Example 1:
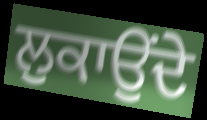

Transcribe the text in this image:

ਲੁਕਾਉਂਦੇ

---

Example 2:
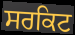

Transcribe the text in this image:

ਸਰਕਿਟ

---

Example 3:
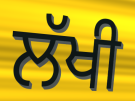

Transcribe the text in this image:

ਲੱਖੀ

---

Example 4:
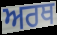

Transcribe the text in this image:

ਅਰਥ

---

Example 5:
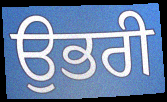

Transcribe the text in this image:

ਉਭਰੀ